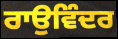
ਰਾਉਵਿੰਦਰ